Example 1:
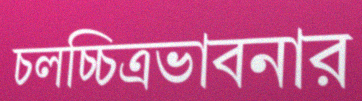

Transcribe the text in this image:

চলচ্চিত্রভাবনার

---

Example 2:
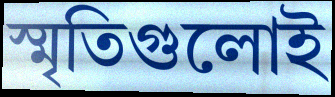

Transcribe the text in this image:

স্মৃতিগুলোই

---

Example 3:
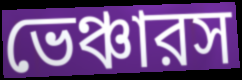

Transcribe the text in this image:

ভেঞ্চারস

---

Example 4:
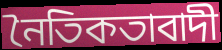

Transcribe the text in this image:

নৈতিকতাবাদী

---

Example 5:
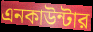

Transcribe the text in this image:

এনকাউন্টার